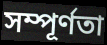
সম্পূর্ণতা